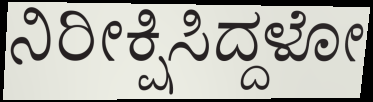
ನಿರೀಕ್ಷಿಸಿದ್ದಳೋ